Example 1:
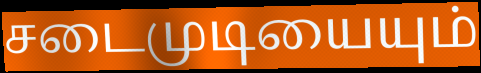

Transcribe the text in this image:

சடைமுடியையும்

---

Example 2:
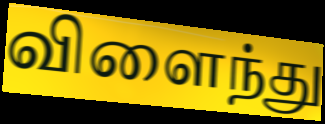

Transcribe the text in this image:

விளைந்து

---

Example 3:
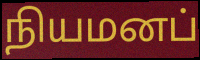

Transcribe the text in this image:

நியமனப்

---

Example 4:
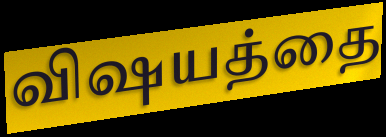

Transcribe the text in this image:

விஷயத்தை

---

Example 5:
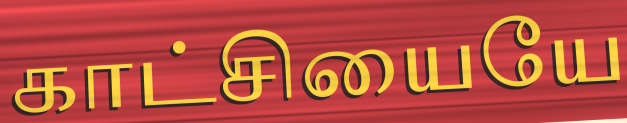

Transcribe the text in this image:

காட்சியையே